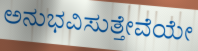
ಅನುಭವಿಸುತ್ತೇವೆಯೇ